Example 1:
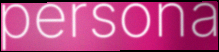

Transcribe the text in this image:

persona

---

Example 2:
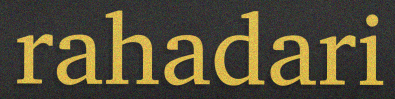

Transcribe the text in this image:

rahadari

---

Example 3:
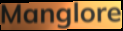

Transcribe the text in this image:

Manglore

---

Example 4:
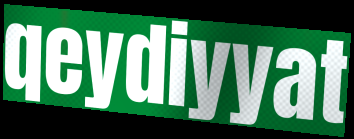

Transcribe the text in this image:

qeydiyyat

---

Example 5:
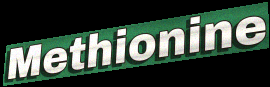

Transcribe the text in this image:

Methionine